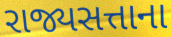
રાજ્યસત્તાના